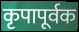
कृपापूर्वक